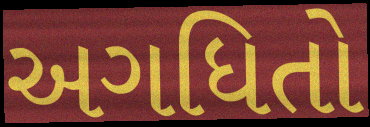
અગધિતો